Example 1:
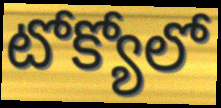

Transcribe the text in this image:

టోక్యోలో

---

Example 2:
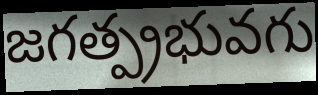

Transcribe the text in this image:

జగత్ప్రభువగు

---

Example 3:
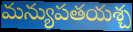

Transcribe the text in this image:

మన్యుపతయశ్చ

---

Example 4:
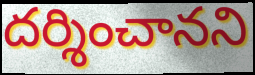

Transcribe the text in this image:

దర్శించానని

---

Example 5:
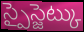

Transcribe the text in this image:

స్పైస్జెట్కు